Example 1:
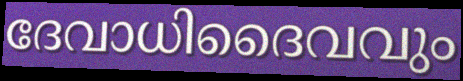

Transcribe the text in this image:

ദേവാധിദൈവവും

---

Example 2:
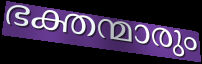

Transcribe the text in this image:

ഭക്തന്മാരും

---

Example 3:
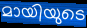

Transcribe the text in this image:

മായിയുടെ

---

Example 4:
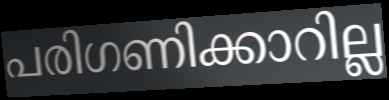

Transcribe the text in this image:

പരിഗണിക്കാറില്ല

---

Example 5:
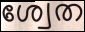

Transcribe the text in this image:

ശ്വേത